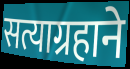
सत्याग्रहाने